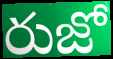
రుజో